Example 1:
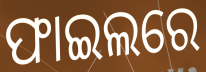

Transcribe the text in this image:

ଫାଇଲରେ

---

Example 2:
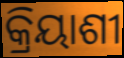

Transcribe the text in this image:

କ୍ରିୟାଶୀ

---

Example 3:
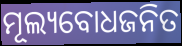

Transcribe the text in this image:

ମୂଲ୍ୟବୋଧଜନିତ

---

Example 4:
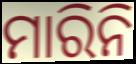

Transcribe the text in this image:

ମାରିନି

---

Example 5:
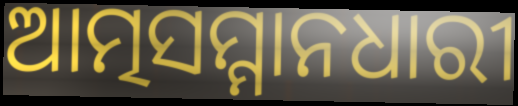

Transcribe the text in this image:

ଆତ୍ମସମ୍ମାନଧାରୀ